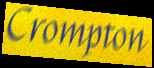
Crompton